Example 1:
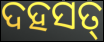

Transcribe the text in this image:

ଦହସତ୍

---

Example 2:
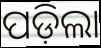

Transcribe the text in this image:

ପଡ଼ିଲା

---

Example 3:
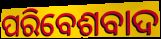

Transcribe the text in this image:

ପରିବେଶବାଦ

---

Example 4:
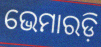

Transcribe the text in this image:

ଭେମାରଡ଼ି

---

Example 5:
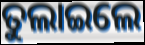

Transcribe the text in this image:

ତୁଲାଇଲେ